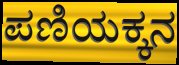
ಪಣಿಯಕ್ಕನ